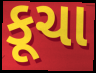
કૂચા